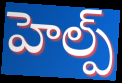
హెల్ప్